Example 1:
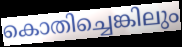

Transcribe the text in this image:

കൊതിച്ചെങ്കിലും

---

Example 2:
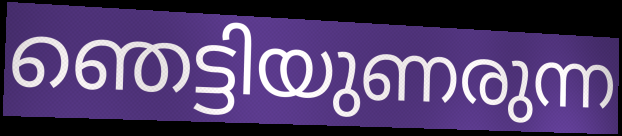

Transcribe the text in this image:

ഞെട്ടിയുണരുന്ന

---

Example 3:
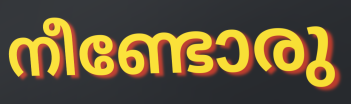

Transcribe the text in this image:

നീണ്ടോരു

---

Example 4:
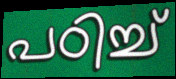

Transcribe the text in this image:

പഠിച്ച്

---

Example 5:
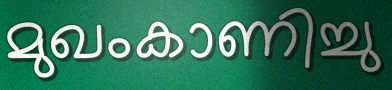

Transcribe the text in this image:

മുഖംകാണിച്ചു